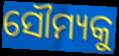
ସୌମ୍ୟକୁ